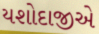
યશોદાજીએ